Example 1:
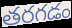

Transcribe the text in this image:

తరగడం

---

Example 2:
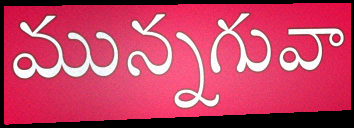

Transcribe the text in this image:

మున్నగువా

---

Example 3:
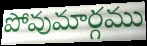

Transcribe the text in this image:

పోవుమార్గము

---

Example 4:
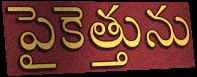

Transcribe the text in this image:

పైకెత్తును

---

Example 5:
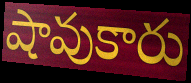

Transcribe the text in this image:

షావుకారు